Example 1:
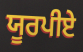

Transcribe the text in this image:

ਯੂਰਪੀਏ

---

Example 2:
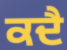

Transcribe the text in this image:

ਕਦੈ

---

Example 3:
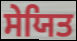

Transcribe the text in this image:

ਸੇਯਿਤ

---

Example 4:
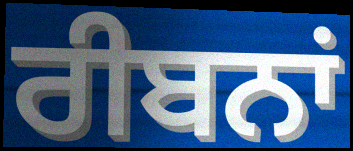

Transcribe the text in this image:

ਰੀਬਨਾਂ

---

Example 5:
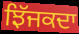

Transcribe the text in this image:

ਝਿੱਜਕਦਾ